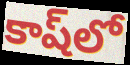
కాష్‌లో